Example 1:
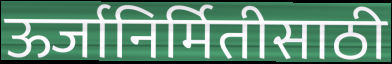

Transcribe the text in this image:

ऊर्जानिर्मितीसाठी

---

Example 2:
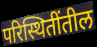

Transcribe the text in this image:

परिस्थितींतील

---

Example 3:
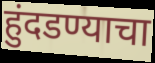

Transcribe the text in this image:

हुंदडण्याचा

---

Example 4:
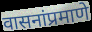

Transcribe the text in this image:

वासनांप्रमाणे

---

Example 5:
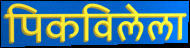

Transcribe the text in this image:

पिकविलेला